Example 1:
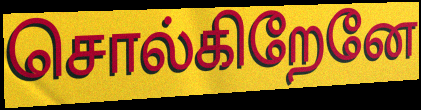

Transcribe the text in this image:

சொல்கிறேனே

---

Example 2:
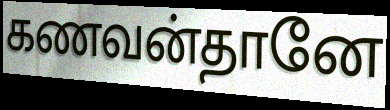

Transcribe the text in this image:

கணவன்தானே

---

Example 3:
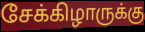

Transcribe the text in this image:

சேக்கிழாருக்கு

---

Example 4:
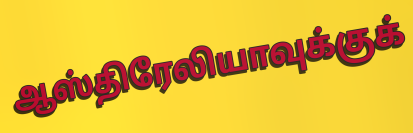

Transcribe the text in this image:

ஆஸ்திரேலியாவுக்குக்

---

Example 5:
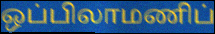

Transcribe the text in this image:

ஒப்பிலாமணிப்